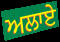
ਅਲਾਏ